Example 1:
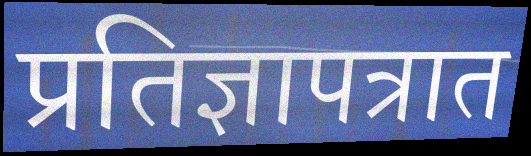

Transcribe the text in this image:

प्रतिज्ञापत्रात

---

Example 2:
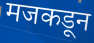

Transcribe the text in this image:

मजकडून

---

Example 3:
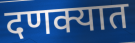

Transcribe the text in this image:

दणक्यात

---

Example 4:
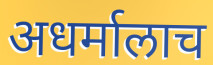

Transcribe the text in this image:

अधर्मालाच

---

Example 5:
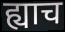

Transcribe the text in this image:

ह्याच